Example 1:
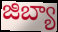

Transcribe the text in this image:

జిబ్యా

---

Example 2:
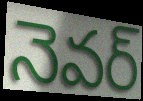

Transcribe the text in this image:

నెవర్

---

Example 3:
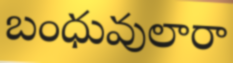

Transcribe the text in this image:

బంధువులారా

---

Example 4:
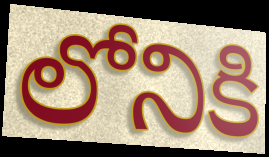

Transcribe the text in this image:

లోనికి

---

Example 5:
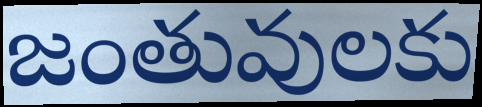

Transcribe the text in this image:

జంతువులకు